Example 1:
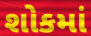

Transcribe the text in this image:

શોકમાં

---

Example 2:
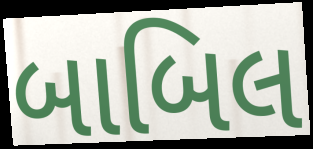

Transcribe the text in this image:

બાબિલ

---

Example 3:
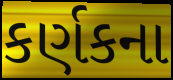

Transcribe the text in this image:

કર્ણકના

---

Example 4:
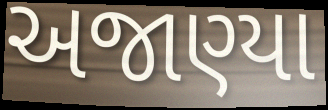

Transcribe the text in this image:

અજાણ્યા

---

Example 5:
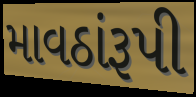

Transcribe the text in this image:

માવઠાંરૂપી